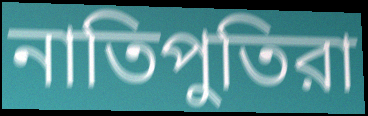
নাতিপুতিরা